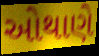
ઓથાણે